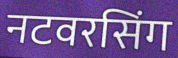
नटवरसिंग